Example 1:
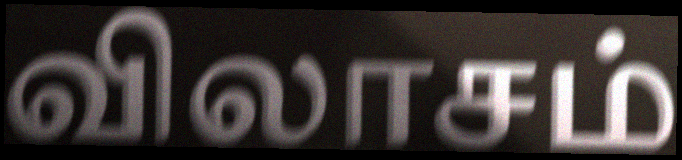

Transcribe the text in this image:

விலாசம்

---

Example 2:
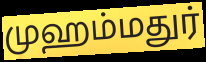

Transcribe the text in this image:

முஹம்மதுர்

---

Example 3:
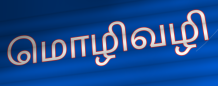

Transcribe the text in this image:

மொழிவழி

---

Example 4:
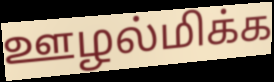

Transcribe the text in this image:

ஊழல்மிக்க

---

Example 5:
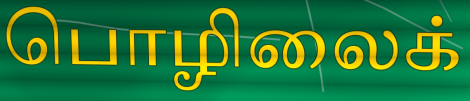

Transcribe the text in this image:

பொழிலைக்